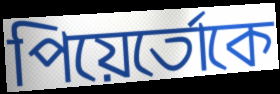
পিয়ের্তোকে